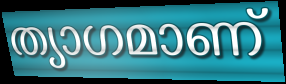
ത്യാഗമാണ്